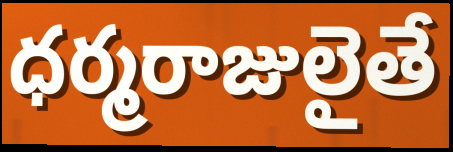
ధర్మరాజులైతే